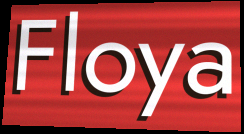
Floya